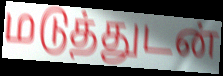
மடுத்துடன்